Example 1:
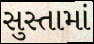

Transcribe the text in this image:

સુસ્તામાં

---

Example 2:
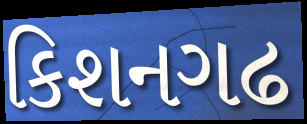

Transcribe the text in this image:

કિશનગઢ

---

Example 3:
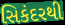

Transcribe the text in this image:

સિકંદરથી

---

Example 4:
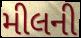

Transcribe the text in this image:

મીલની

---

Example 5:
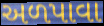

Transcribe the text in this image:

અળપાવા